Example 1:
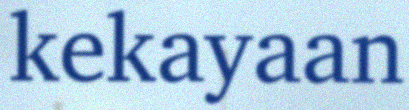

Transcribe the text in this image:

kekayaan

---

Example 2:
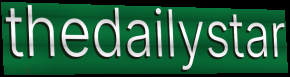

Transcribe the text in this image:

thedailystar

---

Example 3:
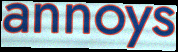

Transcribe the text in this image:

annoys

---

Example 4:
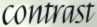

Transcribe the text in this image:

contrast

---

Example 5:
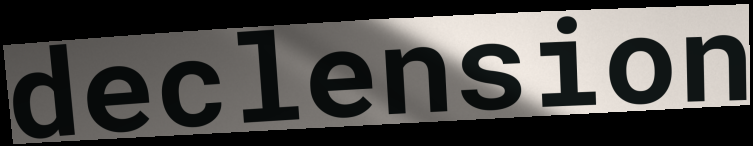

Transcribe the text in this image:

declension